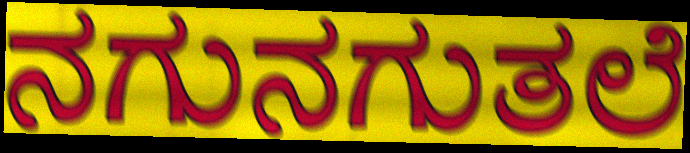
ನಗುನಗುತಲೆ